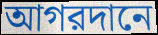
আগরদানে